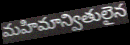
మహిమాన్వితులైన